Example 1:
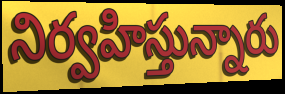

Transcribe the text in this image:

నిర్వహిస్తున్నారు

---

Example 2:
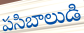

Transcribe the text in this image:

పసిబాలుడి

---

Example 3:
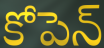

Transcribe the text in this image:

కోపెన్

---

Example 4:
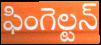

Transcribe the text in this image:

ఫింగెల్టన్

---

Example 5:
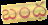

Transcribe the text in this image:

బంధ